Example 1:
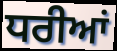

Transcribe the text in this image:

ਧਰੀਆਂ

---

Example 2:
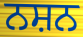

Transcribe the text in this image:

ਨਸ਼ਨ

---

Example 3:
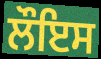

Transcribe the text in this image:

ਲੌਇਸ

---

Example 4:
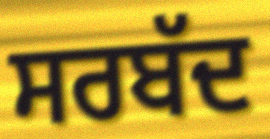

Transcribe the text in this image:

ਸਰਬੱਦ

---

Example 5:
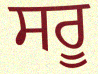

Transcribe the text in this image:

ਸਰੂ